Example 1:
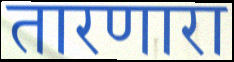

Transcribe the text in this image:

तारणारा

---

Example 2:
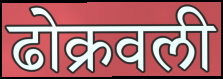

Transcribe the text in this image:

ढोक्रवली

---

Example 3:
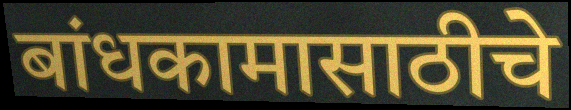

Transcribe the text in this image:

बांधकामासाठीचे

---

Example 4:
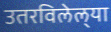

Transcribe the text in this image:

उतरविलेल्या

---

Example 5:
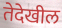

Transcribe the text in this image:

तेदेखील